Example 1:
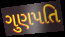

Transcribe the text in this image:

ગુણપતિ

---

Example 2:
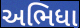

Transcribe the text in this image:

અભિધા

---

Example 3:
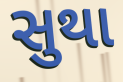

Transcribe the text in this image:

સુથા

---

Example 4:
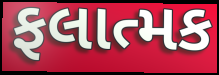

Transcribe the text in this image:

ફલાત્મક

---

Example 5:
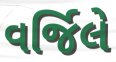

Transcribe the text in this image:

વર્જિલે